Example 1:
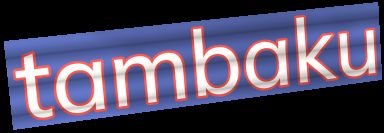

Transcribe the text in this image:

tambaku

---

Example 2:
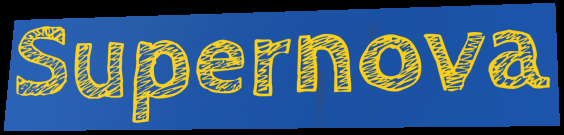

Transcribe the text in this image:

Supernova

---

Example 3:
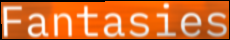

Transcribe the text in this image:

Fantasies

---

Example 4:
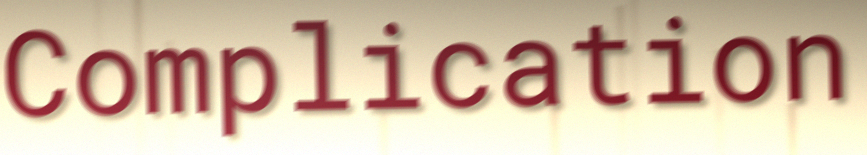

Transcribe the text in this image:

Complication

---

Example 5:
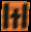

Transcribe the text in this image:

ltl